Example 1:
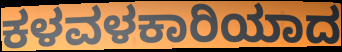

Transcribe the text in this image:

ಕಳವಳಕಾರಿಯಾದ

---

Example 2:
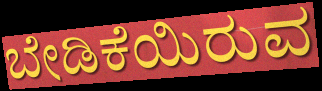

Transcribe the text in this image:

ಬೇಡಿಕೆಯಿರುವ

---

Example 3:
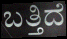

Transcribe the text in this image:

ಬತ್ತಿದೆ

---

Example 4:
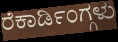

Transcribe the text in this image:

ರೆಕಾರ್ಡಿಂಗ್ಗಳು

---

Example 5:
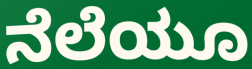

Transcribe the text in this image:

ನೆಲೆಯೂ